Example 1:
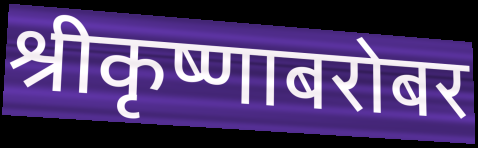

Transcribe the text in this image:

श्रीकृष्णाबरोबर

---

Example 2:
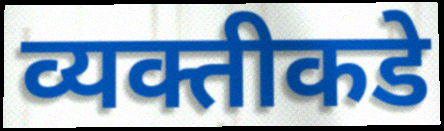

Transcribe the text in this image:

व्यक्तीकडे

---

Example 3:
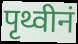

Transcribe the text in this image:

पृथ्वीनं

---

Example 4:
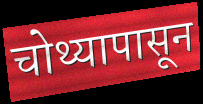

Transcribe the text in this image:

चोथ्यापासून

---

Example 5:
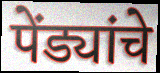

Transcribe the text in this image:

पेंड्यांचे